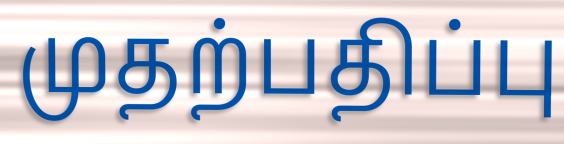
முதற்பதிப்பு